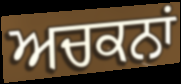
ਅਚਕਨਾਂ